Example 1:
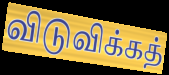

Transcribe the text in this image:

விடுவிக்கத்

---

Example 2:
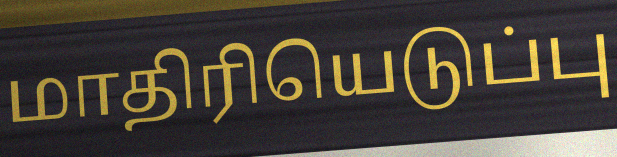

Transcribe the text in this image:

மாதிரியெடுப்பு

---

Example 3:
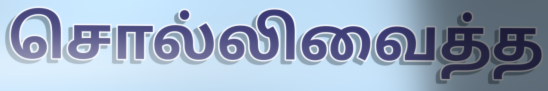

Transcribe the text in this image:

சொல்லிவைத்த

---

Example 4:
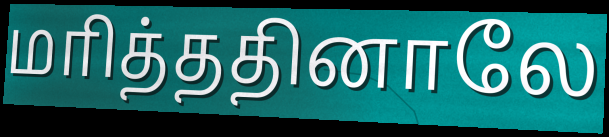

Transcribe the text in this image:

மரித்ததினாலே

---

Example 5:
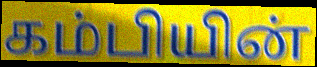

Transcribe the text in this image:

கம்பியின்